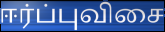
ஈர்ப்புவிசை